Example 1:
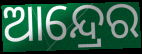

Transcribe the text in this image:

ଆନ୍ଦ୍ରେର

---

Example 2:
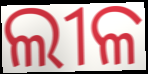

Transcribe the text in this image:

ଲୀଳ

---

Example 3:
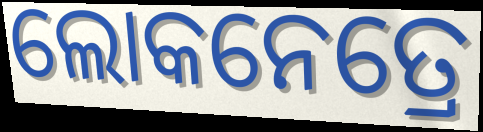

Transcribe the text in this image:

ଲୋକନେତ୍ରେ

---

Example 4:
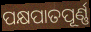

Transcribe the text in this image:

ପକ୍ଷପାତପୂର୍ଣ୍ଣ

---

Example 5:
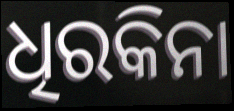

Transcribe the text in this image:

ଧିରକିନା